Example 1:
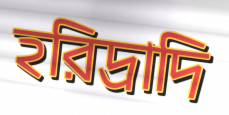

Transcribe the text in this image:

হরিদ্রাদি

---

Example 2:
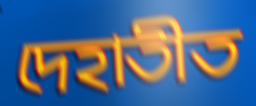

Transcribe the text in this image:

দেহাতীত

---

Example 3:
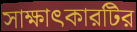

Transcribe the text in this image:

সাক্ষাৎকারটির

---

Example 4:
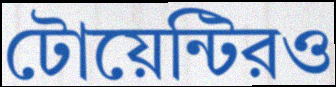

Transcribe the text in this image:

টোয়েন্টিরও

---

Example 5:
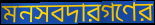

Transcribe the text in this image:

মনসবদারগণের